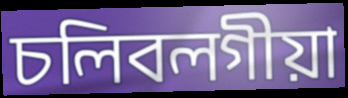
চলিবলগীয়া